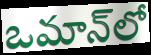
ఒమాన్‌లో